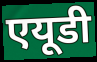
एयूडी